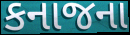
કનાજના